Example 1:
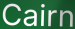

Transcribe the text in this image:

Cairn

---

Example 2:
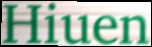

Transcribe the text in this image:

Hiuen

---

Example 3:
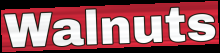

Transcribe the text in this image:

Walnuts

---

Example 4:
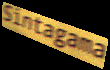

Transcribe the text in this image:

Sintagama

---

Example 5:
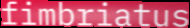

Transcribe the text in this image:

fimbriatus